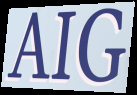
AIG